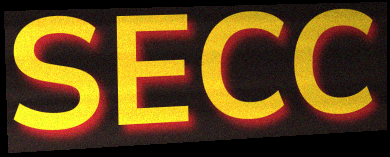
SECC